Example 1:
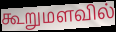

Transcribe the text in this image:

கூறுமளவில்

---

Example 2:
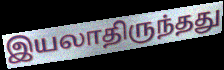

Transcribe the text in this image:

இயலாதிருந்தது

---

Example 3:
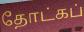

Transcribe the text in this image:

தோட்கப்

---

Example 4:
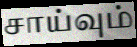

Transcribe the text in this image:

சாய்வும்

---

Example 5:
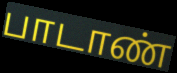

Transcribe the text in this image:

பாடாண்